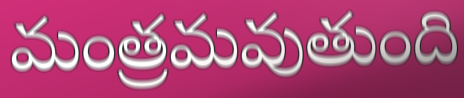
మంత్రమవుతుంది